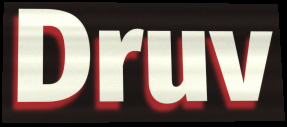
Druv